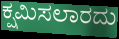
ಕ್ಷಮಿಸಲಾರದು